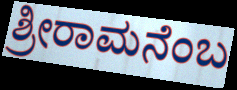
ಶ್ರೀರಾಮನೆಂಬ